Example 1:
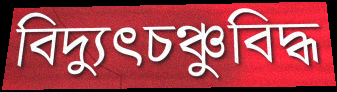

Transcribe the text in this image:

বিদ্যুৎচঞ্চুবিদ্ধ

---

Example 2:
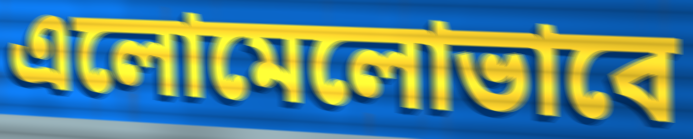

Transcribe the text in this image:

এলোমেলোভাবে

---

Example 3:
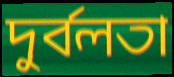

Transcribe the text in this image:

দুর্বলতা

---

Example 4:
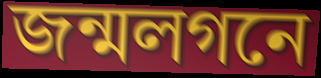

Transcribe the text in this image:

জন্মলগনে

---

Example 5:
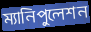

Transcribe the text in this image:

ম্যানিপুলেশন